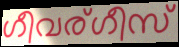
ഗീവര്ഗീസ്